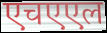
एचएएल